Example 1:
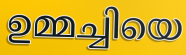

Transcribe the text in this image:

ഉമ്മച്ചിയെ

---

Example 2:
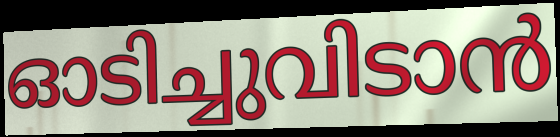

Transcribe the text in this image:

ഓടിച്ചുവിടാൻ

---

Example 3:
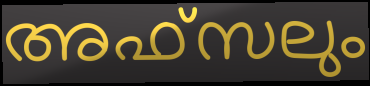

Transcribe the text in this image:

അഫ്സലും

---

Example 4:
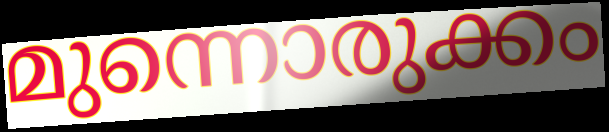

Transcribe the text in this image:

മുന്നൊരുക്കം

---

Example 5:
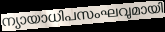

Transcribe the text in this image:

ന്യായാധിപസംഘവുമായി